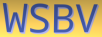
WSBV